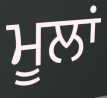
ਮੂਲਾਂ